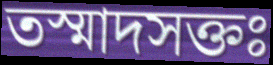
তস্মাদসক্তঃ